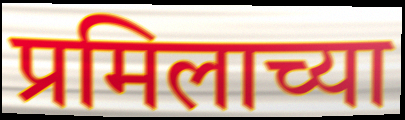
प्रमिलाच्या